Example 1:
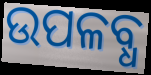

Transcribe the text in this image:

ଉପଳବ୍ଧ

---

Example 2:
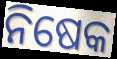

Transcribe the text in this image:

ନିଷେକ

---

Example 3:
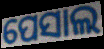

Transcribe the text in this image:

ପେସାଲ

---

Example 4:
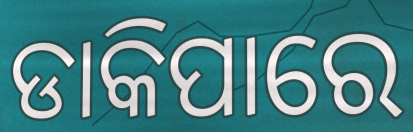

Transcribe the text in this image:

ଡାକିପାରେ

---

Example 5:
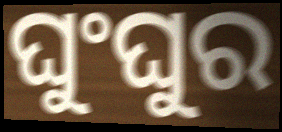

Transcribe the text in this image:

ଘୁଂଘୁର